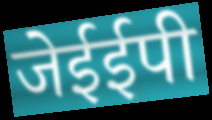
जेईईपी